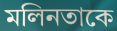
মলিনতাকে